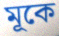
মূকে